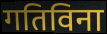
गतिविना